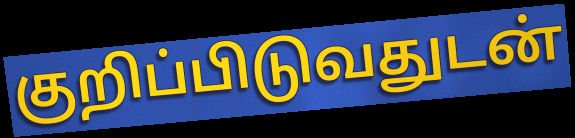
குறிப்பிடுவதுடன்